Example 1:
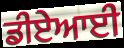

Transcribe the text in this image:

ਡੀਏਆਈ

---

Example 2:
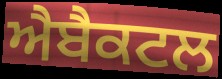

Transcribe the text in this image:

ਐਬੈਕਟਲ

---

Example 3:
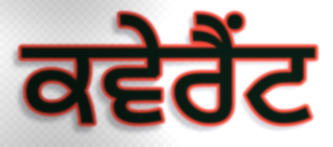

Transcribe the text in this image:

ਕਵੇਰੈਂਟ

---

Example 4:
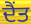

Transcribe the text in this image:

ਦੈਂਤ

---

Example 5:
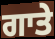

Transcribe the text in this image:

ਗਾਤੇ